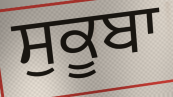
ਸੁਕੂਬਾ